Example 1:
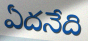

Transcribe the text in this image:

ఏదనేది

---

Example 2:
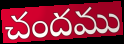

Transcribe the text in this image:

చందము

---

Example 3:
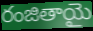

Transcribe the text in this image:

రంజితాయై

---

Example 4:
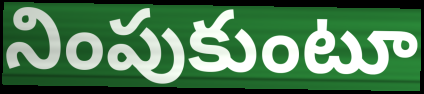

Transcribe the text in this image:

నింపుకుంటూ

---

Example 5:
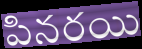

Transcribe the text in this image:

పినరయి